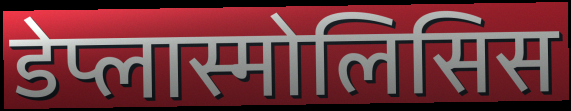
डेप्लास्मोलिसिस